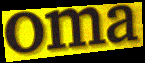
oma